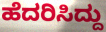
ಹೆದರಿಸಿದ್ದು